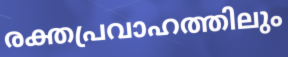
രക്തപ്രവാഹത്തിലും